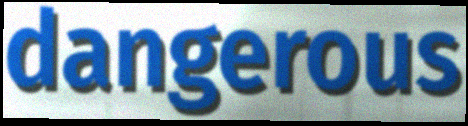
dangerous